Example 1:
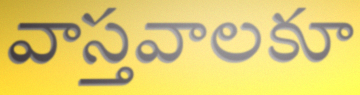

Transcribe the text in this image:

వాస్తవాలకూ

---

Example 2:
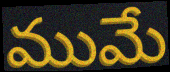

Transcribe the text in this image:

ముమే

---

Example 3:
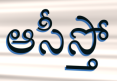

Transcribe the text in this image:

ఆసీస్తో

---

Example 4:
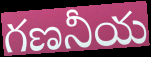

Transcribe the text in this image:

గణనీయ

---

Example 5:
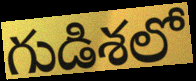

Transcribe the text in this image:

గుడిశలో